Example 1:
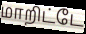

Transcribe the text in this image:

மாறிட்டே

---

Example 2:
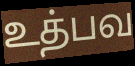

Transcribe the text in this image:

உத்பவ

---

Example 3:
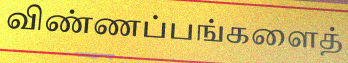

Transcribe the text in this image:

விண்ணப்பங்களைத்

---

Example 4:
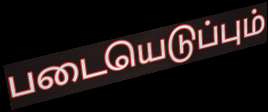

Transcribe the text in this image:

படையெடுப்பும்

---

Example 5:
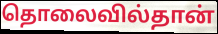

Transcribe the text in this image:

தொலைவில்தான்